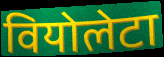
वियोलेटा